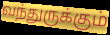
வந்துருக்கும்